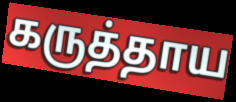
கருத்தாய